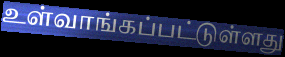
உள்வாங்கப்பட்டுள்ளது